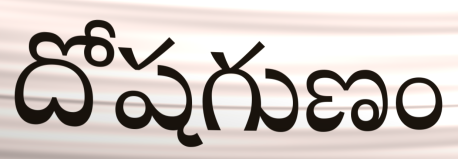
దోషగుణం